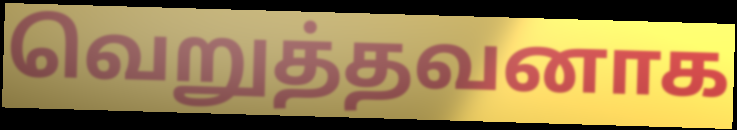
வெறுத்தவனாக